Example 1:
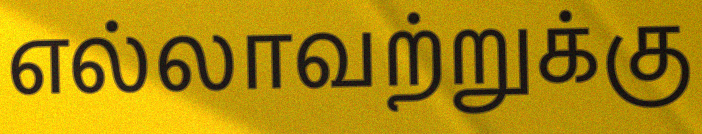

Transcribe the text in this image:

எல்லாவற்றுக்கு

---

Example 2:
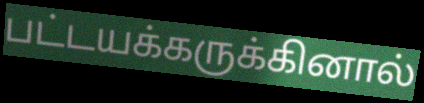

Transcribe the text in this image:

பட்டயக்கருக்கினால்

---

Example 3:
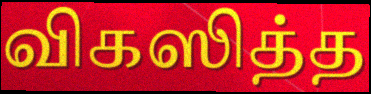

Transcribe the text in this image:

விகஸித்த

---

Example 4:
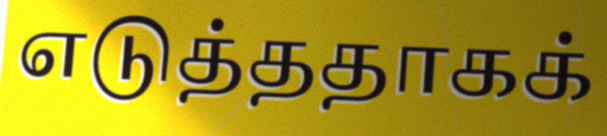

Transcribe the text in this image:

எடுத்ததாகக்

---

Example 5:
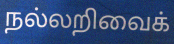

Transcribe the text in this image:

நல்லறிவைக்